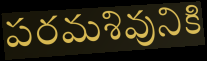
పరమశివునికి